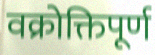
वक्रोक्तिपूर्ण